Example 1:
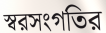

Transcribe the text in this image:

স্বরসংগতির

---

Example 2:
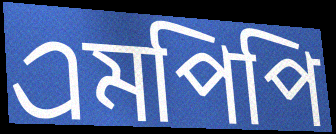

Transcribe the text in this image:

এমপিপি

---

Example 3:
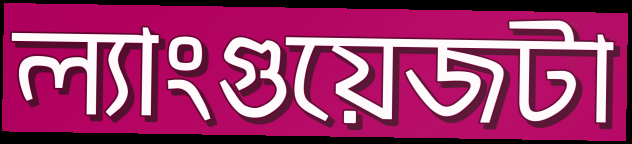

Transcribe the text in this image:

ল্যাংগুয়েজটা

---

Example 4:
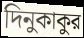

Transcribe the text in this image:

দিনুকাকুর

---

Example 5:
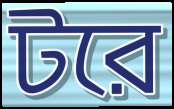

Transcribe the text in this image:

টরে